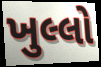
ખુલ્લો